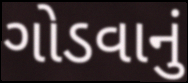
ગોડવાનું